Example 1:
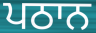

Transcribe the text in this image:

ਪਠਾਨ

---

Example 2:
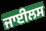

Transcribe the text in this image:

ਜਾਈਲਸ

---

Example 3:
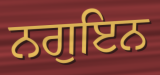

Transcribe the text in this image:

ਨਗੁਇਨ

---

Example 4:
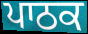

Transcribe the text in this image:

ਪਾਠਕ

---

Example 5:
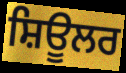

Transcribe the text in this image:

ਸ਼ਿਊਲਰ